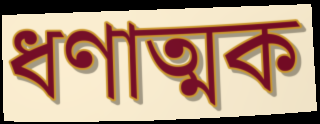
ধণাত্মক